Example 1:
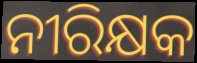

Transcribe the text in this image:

ନୀରିକ୍ଷକ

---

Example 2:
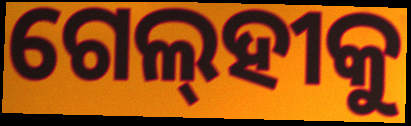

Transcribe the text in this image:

ଗେଲ୍‌ହୀକୁ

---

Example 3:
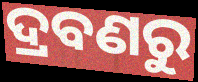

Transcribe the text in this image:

ଦ୍ରବଣରୁ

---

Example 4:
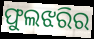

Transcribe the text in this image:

ଫୁଲଝରିର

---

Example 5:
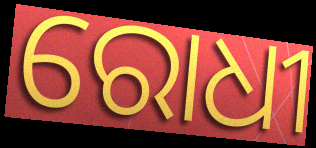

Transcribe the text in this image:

ରୋଧୀ